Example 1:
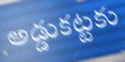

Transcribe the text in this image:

అడ్డుకట్టకు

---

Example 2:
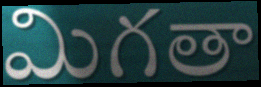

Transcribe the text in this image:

మిగతా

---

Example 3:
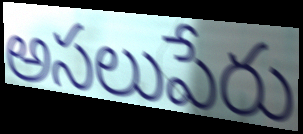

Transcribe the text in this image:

అసలుపేరు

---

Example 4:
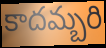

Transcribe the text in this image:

కాదమ్బరి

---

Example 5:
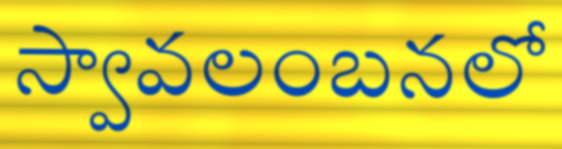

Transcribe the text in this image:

స్వావలంబనలో